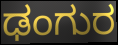
ಢಂಗುರ